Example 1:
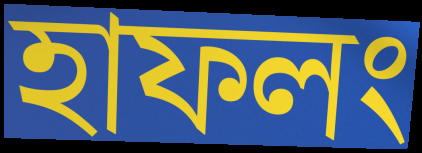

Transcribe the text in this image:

হাফলং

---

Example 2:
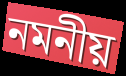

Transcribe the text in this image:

নমনীয়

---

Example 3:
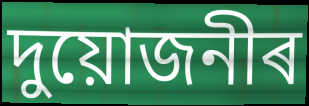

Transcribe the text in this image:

দুয়োজনীৰ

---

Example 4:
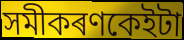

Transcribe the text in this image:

সমীকৰণকেইটা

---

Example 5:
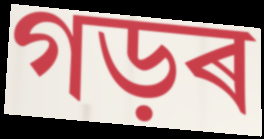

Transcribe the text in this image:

গড়ৰ